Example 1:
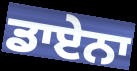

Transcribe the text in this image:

ਡਾਏਨਾ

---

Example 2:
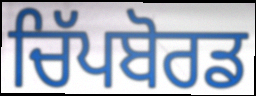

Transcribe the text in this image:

ਚਿੱਪਬੋਰਡ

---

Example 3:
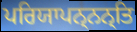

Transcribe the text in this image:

ਪਰਿਯਾਪਨ੍ਨਨ੍ਤਿ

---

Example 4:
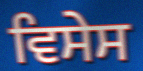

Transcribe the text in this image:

ਵਿਸੇਸ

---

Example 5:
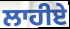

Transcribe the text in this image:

ਲਾਹੀਏ